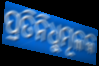
ପ୍ରତିନିଧୁମୂଳକ